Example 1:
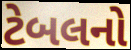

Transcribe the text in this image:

ટેબલનો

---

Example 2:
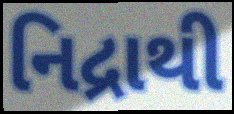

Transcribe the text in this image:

નિદ્રાથી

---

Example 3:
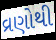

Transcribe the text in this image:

વ્રણોથી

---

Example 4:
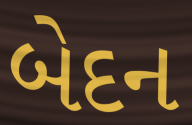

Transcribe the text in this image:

બેદન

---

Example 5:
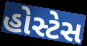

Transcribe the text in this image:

હોસ્ટેસ